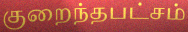
குறைந்தபட்சம்